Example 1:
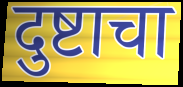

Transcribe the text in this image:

दुष्टाचा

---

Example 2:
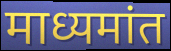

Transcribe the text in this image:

माध्यमांत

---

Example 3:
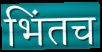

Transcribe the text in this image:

भिंतच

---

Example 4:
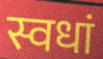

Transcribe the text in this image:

स्वधां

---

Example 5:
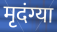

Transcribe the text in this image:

मृदंग्या